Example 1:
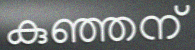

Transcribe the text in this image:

കുഞ്ഞന്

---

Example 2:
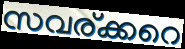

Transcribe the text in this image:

സവര്ക്കറെ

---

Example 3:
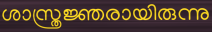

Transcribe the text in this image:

ശാസ്ത്രജ്ഞരായിരുന്നു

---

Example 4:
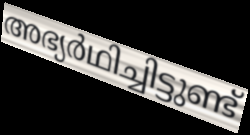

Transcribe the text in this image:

അഭ്യർഥിച്ചിട്ടുണ്ട്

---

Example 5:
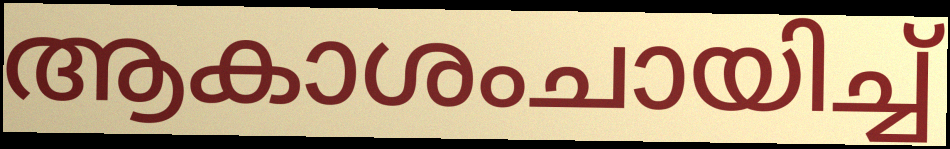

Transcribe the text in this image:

ആകാശംചായിച്ച്